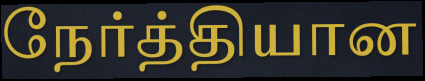
நேர்த்தியான